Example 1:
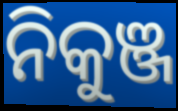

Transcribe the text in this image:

ନିକୁଞ୍ଜ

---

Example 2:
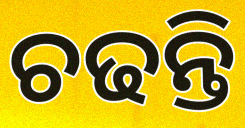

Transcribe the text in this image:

ଚଢନ୍ତି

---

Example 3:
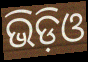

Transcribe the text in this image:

ଭିଡ଼ିଓ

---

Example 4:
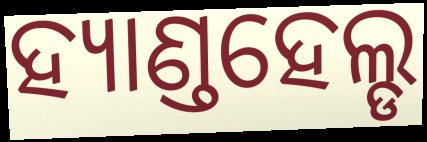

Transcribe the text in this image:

ହ୍ୟାଣ୍ଡହେଲ୍ଡ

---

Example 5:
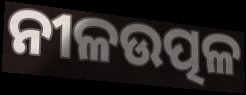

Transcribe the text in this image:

ନୀଳଉତ୍ପଳ